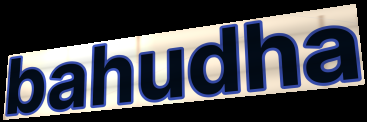
bahudha